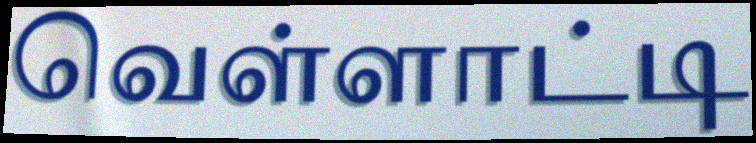
வெள்ளாட்டி